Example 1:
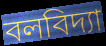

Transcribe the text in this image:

বলবিদ্যা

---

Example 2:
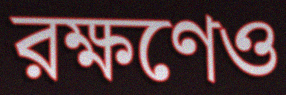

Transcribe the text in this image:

রক্ষণেও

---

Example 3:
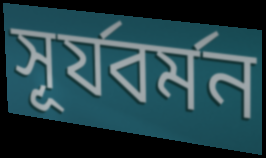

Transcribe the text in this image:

সূর্যবর্মন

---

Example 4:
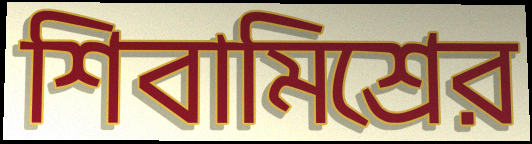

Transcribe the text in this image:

শিবামিশ্রের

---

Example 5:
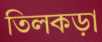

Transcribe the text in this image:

তিলকড়া